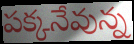
పక్కనేవున్న